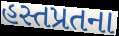
હસ્તપ્રતના